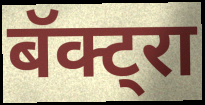
बॅक्ट्रा